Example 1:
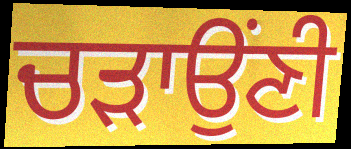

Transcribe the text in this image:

ਚੜਾਉਂਣੀ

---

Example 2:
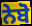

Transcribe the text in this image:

ਨੇਬੋ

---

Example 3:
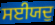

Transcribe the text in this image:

ਸਈਯਦੁ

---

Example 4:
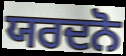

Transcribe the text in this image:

ਯਰਦਨੋ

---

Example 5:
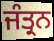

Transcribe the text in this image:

ਜੰਤ੍ਰਨ